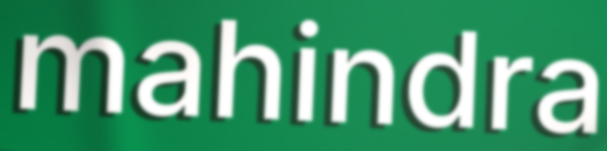
mahindra